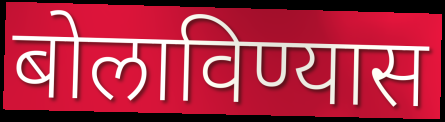
बोलाविण्यास